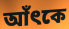
আঁৎকে